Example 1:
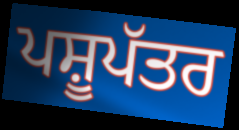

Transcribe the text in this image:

ਪਸ਼ੂਪੱਤਰ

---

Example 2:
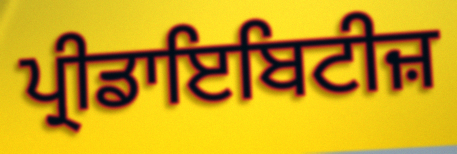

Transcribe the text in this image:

ਪ੍ਰੀਡਾਇਬਿਟੀਜ਼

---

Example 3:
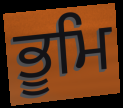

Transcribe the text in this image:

ਭੂਮਿ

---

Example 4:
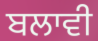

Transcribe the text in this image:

ਬਲਾਵੀ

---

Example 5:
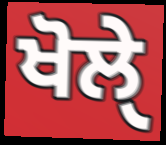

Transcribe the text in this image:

ਖੋਲੑੇ